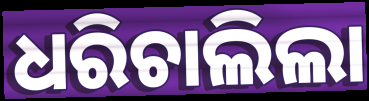
ଧରିଚାଲିଲା